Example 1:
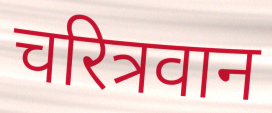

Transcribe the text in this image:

चरित्रवान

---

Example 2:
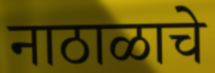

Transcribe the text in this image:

नाठाळाचे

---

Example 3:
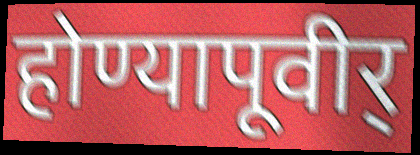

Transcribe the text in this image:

होण्यापूवीर्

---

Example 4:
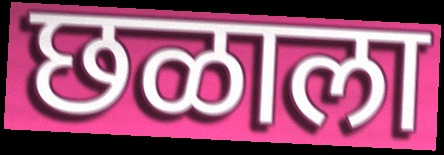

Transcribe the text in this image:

छळाला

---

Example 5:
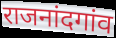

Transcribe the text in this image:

राजनांदगांव